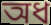
অধ